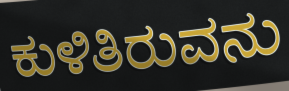
ಕುಳಿತಿರುವನು